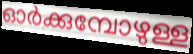
ഓർക്കുമ്പോഴുള്ള